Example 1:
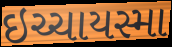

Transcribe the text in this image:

ઇચ્ચાયસ્મા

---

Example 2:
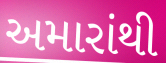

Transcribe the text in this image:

અમારાંથી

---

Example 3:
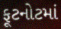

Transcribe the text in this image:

ફૂટનોટમાં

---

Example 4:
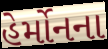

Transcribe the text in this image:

હેર્મોનના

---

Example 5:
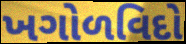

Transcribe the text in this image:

ખગોળવિદો